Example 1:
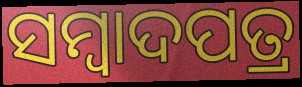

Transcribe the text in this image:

ସମ୍ବାଦପତ୍ର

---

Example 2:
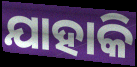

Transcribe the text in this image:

ଯାହାକି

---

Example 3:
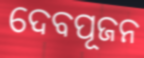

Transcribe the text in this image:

ଦେବପୂଜନ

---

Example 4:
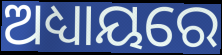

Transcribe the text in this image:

ଅଧ୍ୟାୟରେ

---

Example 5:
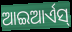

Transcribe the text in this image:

ଆଇଆର୍ଏସ୍